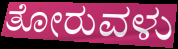
ತೋರುವಳು